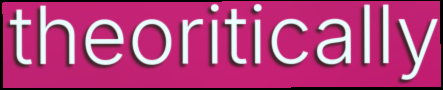
theoritically